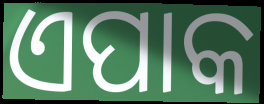
ଏପାକ